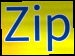
Zip